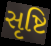
સૃષ્ટિ